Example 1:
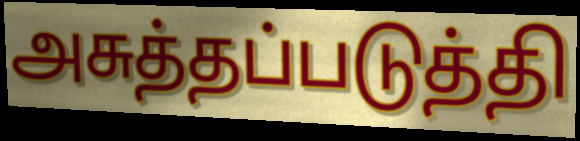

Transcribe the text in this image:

அசுத்தப்படுத்தி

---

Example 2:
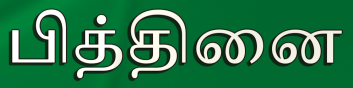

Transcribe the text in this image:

பித்தினை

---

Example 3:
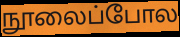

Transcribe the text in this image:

நூலைப்போல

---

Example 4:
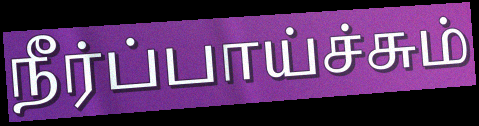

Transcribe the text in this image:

நீர்ப்பாய்ச்சும்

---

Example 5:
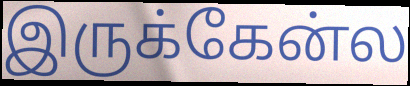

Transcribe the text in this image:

இருக்கேன்ல